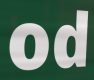
od